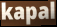
kapal